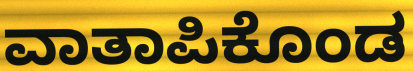
ವಾತಾಪಿಕೊಂಡ